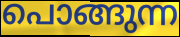
പൊങ്ങുന്ന